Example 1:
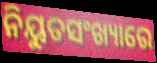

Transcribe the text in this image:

ନିୟୁତସଂଖ୍ୟାରେ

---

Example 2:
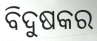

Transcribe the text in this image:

ବିଦୁଷକର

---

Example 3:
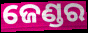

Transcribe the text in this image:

ଜେଣ୍ଡର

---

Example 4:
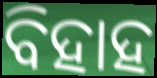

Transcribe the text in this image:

ବିହାହ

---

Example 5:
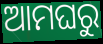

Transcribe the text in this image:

ଆମଘରୁ